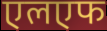
एलएफ